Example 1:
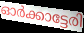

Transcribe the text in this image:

ഓർക്കാട്ടേരി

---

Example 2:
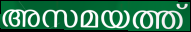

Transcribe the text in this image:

അസമയത്ത്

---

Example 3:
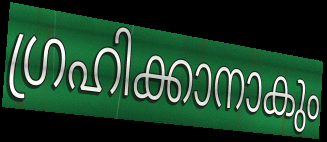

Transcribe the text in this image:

ഗ്രഹിക്കാനാകും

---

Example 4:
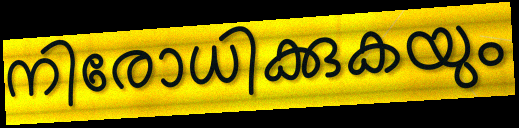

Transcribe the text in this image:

നിരോധിക്കുകയും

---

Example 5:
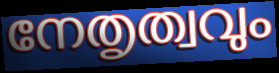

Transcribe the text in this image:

നേതൃത്വവും